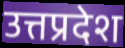
उत्तप्रदेश